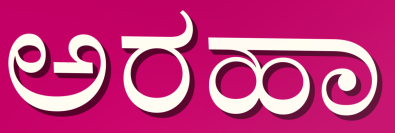
ಅರಹಾ